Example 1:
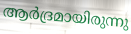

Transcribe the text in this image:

ആർദ്രമായിരുന്നു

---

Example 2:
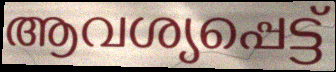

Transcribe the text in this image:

ആവശ്യപ്പെട്ട്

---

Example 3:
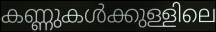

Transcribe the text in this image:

കണ്ണുകൾക്കുള്ളിലെ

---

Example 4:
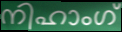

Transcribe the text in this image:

നിഹാംഗ്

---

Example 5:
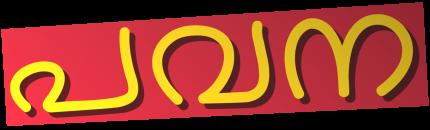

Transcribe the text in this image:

പവന